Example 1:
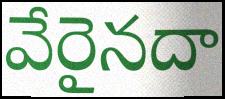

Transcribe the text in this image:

వేరైనదా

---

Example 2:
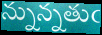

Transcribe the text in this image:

న్నున్నతుఁ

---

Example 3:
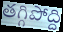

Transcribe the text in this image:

తగ్గిపోద్ది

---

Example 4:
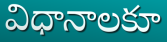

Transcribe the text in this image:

విధానాలకూ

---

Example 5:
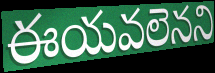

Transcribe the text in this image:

ఈయవలెనని